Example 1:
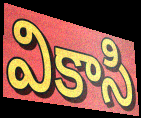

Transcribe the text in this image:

వికాసి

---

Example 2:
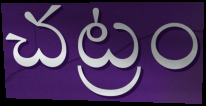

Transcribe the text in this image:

చట్రం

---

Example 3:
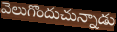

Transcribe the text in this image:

వెలుగొందుచున్నాడు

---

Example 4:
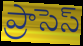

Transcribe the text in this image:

ప్రాసెస్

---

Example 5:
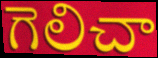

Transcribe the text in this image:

గెలిచా